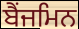
ਬੈਂਜਮਿਨ